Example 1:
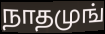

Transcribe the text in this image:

நாதமுங்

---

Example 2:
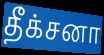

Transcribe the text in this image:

தீக்சனா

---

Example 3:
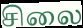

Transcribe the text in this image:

சிலை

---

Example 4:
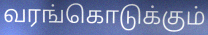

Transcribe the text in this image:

வரங்கொடுக்கும்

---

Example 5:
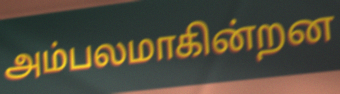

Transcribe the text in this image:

அம்பலமாகின்றன